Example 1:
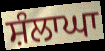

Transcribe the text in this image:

ਸ਼ੰਲਾਘਾ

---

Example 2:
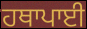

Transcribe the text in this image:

ਹਥਾਪਾਈ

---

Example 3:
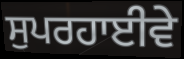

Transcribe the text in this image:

ਸੁਪਰਹਾਈਵੇ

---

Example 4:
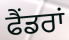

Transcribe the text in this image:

ਫੈਂਡਰਾਂ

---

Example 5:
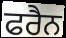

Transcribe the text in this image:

ਫਰੈਨ